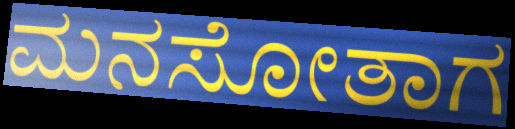
ಮನಸೋತಾಗ